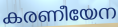
കരണീയേന